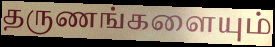
தருணங்களையும்